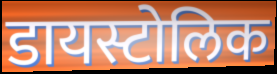
डायस्टोलिक